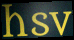
hsv